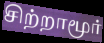
சிற்றாமூர்